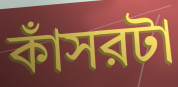
কাঁসরটা